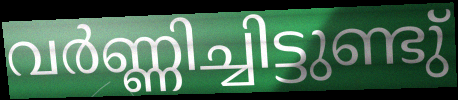
വർണ്ണിച്ചിട്ടുണ്ടു്